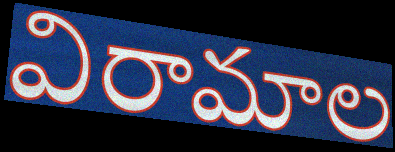
విరామాల